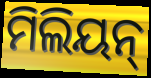
ମିଲିୟନ୍